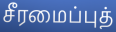
சீரமைப்புத்